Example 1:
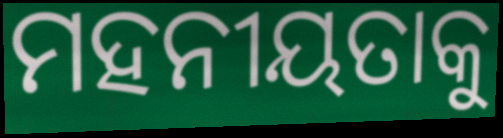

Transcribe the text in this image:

ମହନୀୟତାକୁ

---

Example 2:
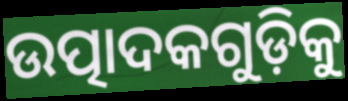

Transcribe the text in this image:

ଉତ୍ପାଦକଗୁଡ଼ିକୁ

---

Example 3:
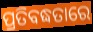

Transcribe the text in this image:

ପ୍ରତିବଦ୍ଧତାରେ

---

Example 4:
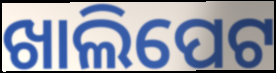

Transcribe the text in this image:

ଖାଲିପେଟ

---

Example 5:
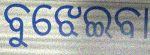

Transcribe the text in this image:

ବୁଝେଇବା